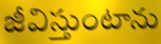
జీవిస్తుంటాను